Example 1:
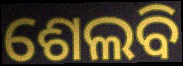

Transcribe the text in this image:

ଶେଲବି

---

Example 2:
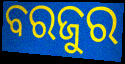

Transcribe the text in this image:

ବରଜୁର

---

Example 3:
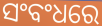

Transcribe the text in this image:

ସଂବଂଧରେ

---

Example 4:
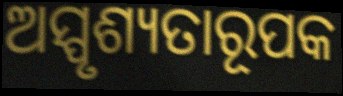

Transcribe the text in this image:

ଅସ୍ପୃଶ୍ୟତାରୂପକ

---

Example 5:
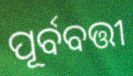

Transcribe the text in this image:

ପୂର୍ବବତ୍ତୀ